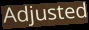
Adjusted